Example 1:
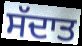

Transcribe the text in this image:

ਸੱਦਾਤ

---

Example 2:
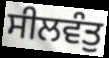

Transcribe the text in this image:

ਸੀਲਵੰਤੁ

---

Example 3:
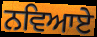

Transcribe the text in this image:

ਨਵਿਆਏ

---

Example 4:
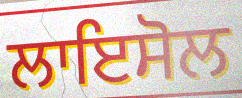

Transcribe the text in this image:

ਲਾਇਸੋਲ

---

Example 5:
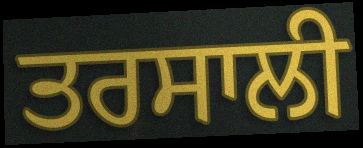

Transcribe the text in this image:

ਤਰਸਾਲੀ